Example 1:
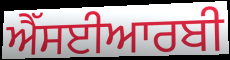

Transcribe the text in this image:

ਐੱਸਈਆਰਬੀ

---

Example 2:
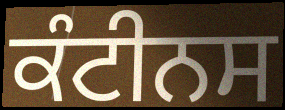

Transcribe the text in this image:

ਕੰਟੀਨਸ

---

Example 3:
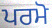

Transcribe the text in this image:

ਪਰਮੋ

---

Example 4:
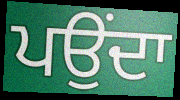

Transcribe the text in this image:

ਪਉਂਦਾ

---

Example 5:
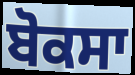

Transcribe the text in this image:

ਬੋਕਸਾ